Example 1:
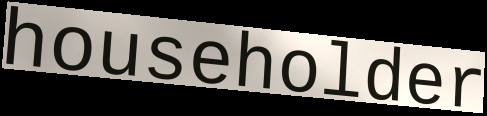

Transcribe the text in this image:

householder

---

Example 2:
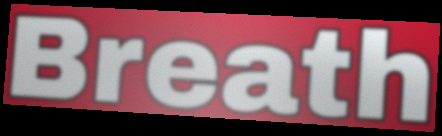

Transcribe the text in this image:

Breath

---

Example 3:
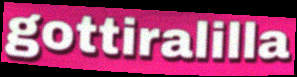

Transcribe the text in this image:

gottiralilla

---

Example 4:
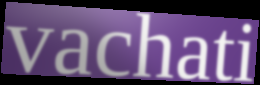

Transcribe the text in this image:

vachati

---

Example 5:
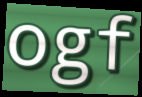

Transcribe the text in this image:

ogf